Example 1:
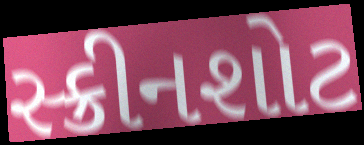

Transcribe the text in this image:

સ્ક્રીનશોટ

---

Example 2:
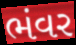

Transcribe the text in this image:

ભંવર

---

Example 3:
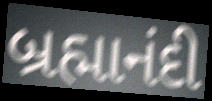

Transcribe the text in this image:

બ્રહ્માનંદી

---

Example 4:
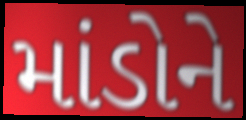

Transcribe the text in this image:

માંડોને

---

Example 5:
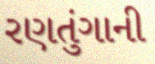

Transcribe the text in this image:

રણતુંગાની